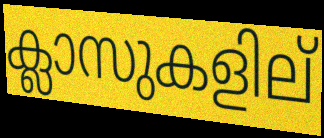
ക്ലാസുകളില്